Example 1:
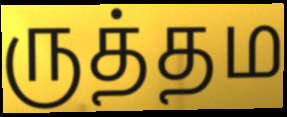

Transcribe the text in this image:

ருத்தம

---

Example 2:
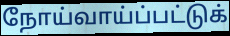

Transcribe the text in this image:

நோய்வாய்ப்பட்டுக்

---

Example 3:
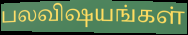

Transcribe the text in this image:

பலவிஷயங்கள்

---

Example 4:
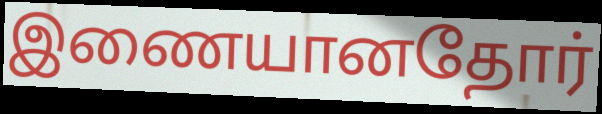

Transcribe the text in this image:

இணையானதோர்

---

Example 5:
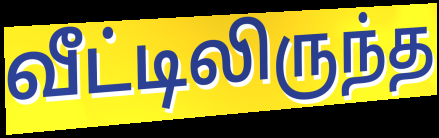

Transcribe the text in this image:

வீட்டிலிருந்த